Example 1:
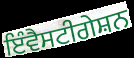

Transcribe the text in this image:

ਇੰਵੈਸਟੀਗੇਸ਼ਨ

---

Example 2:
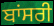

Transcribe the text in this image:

ਬਾਂਸਰੀ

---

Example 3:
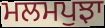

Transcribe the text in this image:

ਮਲਮਪੁਝਾ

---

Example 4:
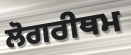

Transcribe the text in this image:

ਲੋਗਰੀਥਮ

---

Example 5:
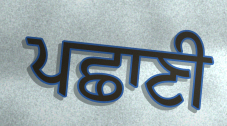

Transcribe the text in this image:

ਪਛਾਣੀ